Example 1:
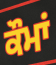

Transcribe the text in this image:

ਕੌਮਾਂ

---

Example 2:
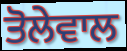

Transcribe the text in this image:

ਤੋਲੇਵਾਲ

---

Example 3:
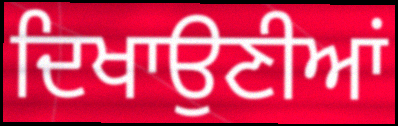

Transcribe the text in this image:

ਦਿਖਾਉਣੀਆਂ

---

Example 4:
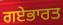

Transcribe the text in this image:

ਗਏਭਾਰਤ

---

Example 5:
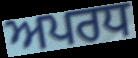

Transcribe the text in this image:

ਅਪਰਧ